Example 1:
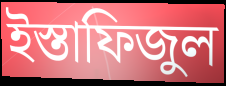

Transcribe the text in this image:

ইস্তাফিজুল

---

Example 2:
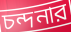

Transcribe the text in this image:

চন্দনার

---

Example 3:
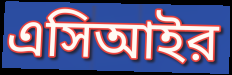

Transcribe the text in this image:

এসিআইর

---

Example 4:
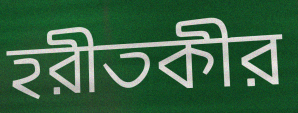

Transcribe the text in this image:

হরীতকীর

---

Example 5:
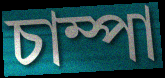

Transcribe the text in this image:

চাম্পা